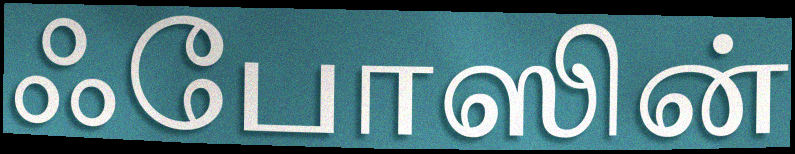
ஃபோஸின்